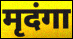
मृदंगा